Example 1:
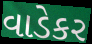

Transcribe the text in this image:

વાડેકર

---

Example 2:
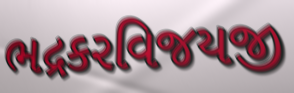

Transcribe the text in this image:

ભદ્રકરવિજયજી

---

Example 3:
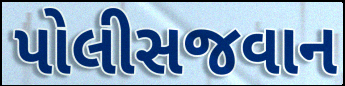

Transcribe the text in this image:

પોલીસજવાન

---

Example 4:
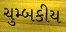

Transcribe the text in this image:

ચુમ્બકીય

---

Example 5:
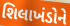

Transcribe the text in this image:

શિલાખંડોને